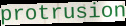
protrusion